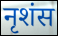
नृशंस